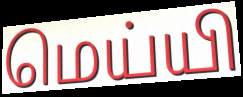
மெய்யி